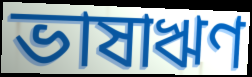
ভাষাঋণ